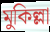
মুকিল্লা